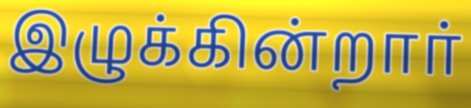
இழுக்கின்றார்